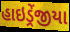
હાઇડ્રેંજીયા